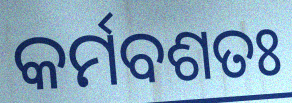
କର୍ମବଶତଃ